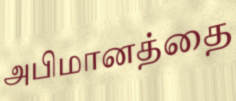
அபிமானத்தை